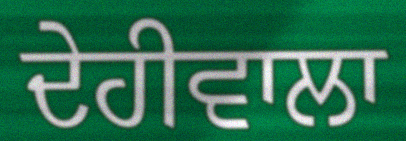
ਦੇਹੀਵਾਲਾ